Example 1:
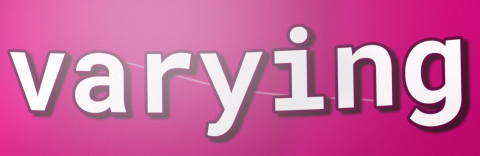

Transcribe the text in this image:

varying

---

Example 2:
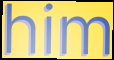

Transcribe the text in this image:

him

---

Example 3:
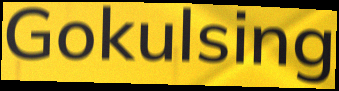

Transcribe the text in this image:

Gokulsing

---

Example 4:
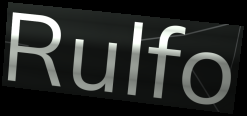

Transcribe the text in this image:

Rulfo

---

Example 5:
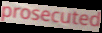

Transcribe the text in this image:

prosecuted